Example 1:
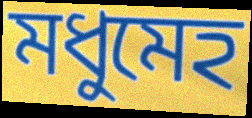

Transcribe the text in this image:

মধুমেহ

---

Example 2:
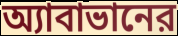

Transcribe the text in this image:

অ্যাবাভানের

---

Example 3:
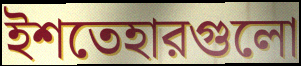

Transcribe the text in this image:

ইশতেহারগুলো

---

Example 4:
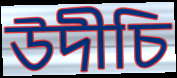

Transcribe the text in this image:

উদীচি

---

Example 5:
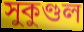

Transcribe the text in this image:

সুকুণ্ডল